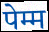
पेम्म